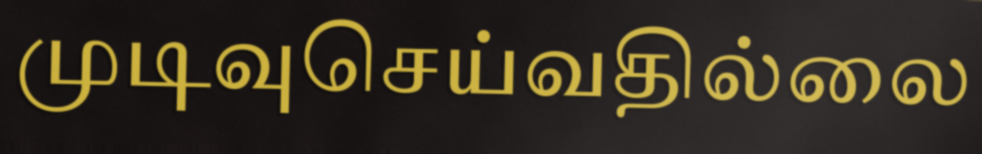
முடிவுசெய்வதில்லை